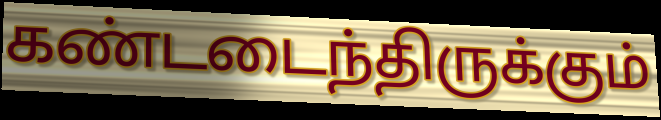
கண்டடைந்திருக்கும்